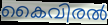
കൈവിരൽ